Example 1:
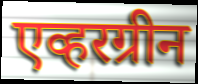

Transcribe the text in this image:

एव्हरग्रीन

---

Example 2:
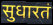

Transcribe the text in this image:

सुधारतं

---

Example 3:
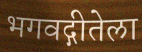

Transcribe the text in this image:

भगवद्गीतेला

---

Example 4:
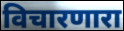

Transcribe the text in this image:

विचारणारा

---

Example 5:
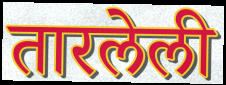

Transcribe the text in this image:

तारलेली